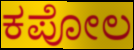
ಕಪೋಲ